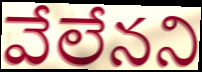
వేలేనని